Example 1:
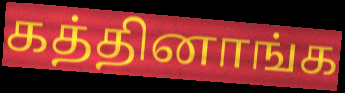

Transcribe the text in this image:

கத்தினாங்க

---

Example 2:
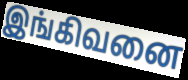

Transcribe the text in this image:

இங்கிவனை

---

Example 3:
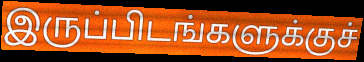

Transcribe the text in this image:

இருப்பிடங்களுக்குச்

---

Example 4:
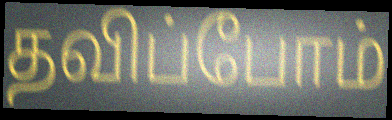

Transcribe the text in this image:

தவிப்போம்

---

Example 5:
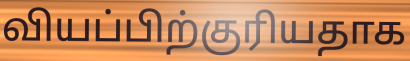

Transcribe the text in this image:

வியப்பிற்குரியதாக